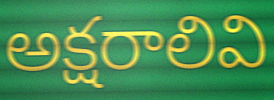
అక్షరాలివి